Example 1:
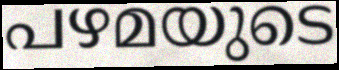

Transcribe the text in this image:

പഴമയുടെ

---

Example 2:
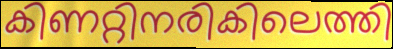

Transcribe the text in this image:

കിണറ്റിനരികിലെത്തി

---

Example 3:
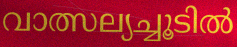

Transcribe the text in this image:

വാത്സല്യച്ചൂടിൽ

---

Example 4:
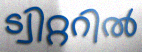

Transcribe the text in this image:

ട്വിറ്ററിൽ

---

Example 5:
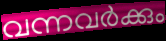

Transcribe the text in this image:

വന്നവർക്കും